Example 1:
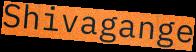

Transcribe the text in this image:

Shivagange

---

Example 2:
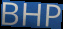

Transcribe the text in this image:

BHP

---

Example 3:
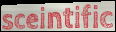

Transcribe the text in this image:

sceintific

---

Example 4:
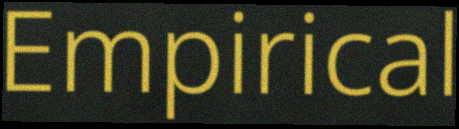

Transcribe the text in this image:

Empirical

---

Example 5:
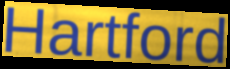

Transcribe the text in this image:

Hartford